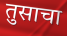
तुसाचा